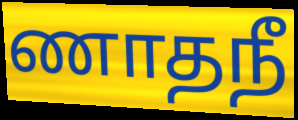
ணாதநீ